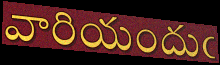
వారియందుఁ